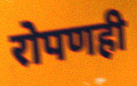
रोपणही